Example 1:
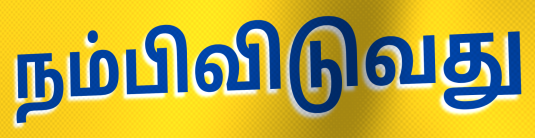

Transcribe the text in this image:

நம்பிவிடுவது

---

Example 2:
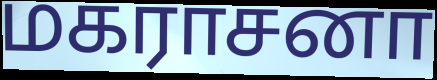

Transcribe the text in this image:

மகராசனா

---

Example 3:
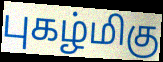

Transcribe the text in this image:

புகழ்மிகு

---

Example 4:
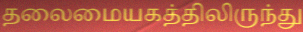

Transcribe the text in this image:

தலைமையகத்திலிருந்து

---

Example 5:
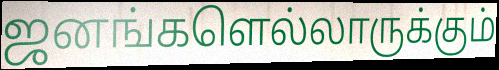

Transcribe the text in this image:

ஜனங்களெல்லாருக்கும்